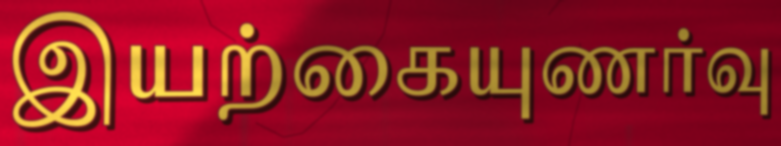
இயற்கையுணர்வு